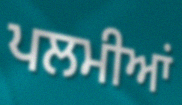
ਪਲਮੀਆਂ